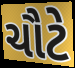
ચૌટે